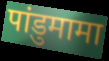
पांडुमामा